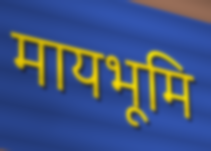
मायभूमि